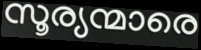
സൂര്യന്മാരെ